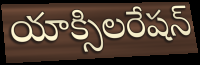
యాక్సిలరేషన్